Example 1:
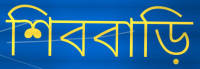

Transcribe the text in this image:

শিববাড়ি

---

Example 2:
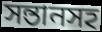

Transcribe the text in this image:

সন্তানসহ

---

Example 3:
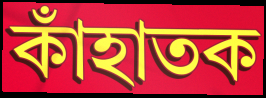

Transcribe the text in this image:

কাঁহাতক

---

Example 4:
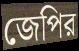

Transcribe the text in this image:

জেপির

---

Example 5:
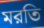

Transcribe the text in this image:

মরতি